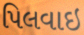
પિલવાઇ